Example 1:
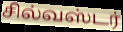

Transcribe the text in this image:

சில்வஸ்டர்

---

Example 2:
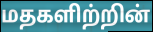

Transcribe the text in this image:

மதகளிற்றின்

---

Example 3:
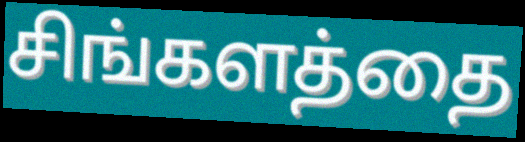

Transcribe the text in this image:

சிங்களத்தை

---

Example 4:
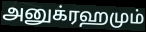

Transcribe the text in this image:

அனுக்ரஹமும்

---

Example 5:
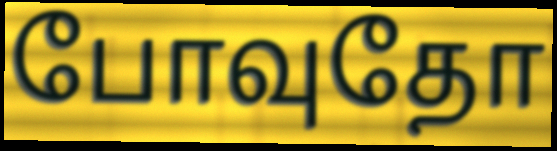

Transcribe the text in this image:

போவுதோ